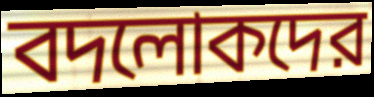
বদলোকদের